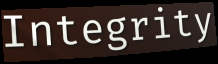
Integrity